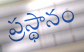
ప్రస్థానం